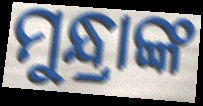
ମୁନ୍ଧ୍ରାଙ୍କ